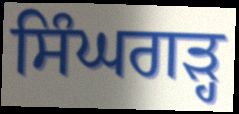
ਸਿੰਘਗੜ੍ਹ